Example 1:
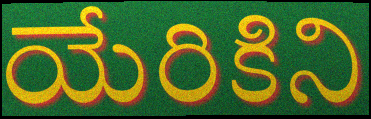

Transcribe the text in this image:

యేరికిని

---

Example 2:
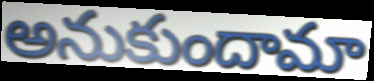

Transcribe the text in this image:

అనుకుందామా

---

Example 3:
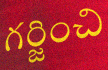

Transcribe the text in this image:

గర్జించి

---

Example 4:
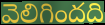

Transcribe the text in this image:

వెలిగిందది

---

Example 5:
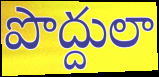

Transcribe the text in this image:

పొద్దులా